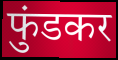
फुंडकर